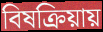
বিষক্রিয়ায়